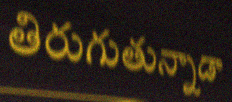
తిరుగుతున్నాడా